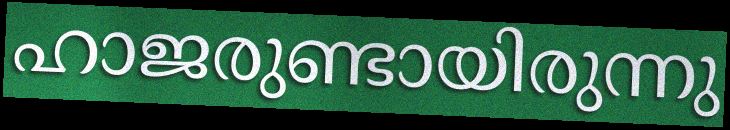
ഹാജരുണ്ടായിരുന്നു